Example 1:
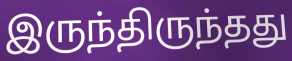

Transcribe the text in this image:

இருந்திருந்தது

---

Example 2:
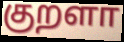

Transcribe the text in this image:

குறளா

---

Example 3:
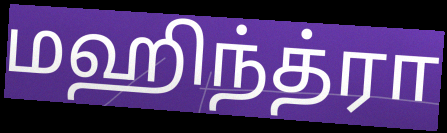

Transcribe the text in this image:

மஹிந்த்ரா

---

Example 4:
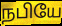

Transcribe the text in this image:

நபியே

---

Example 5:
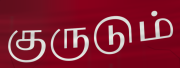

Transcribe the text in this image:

குருடும்